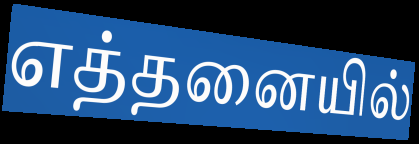
எத்தனையில்